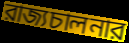
রাজ্যচালনার